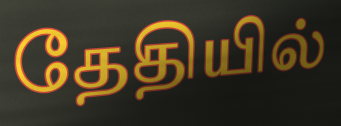
தேதியில்